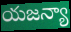
యజన్యా